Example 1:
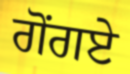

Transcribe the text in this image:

ਗੋਂਗਏ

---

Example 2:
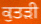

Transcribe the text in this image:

ਕੁਤੜੀ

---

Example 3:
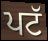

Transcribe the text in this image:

ਪਟੱ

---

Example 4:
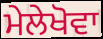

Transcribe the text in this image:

ਮੇਲੇਖੋਵਾ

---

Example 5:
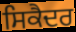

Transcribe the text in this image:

ਸਿਕੈਦਰ